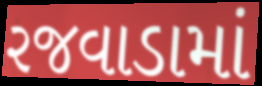
રજવાડામાં